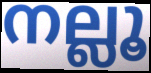
നല്ലൂ